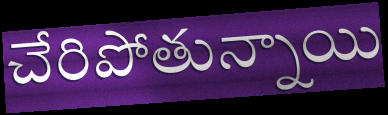
చేరిపోతున్నాయి